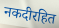
नकदीरहित